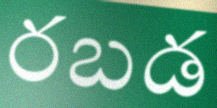
రబడ